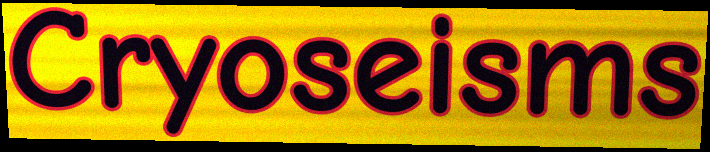
Cryoseisms